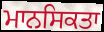
ਮਾਨਸਿਕਤਾ